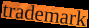
trademark